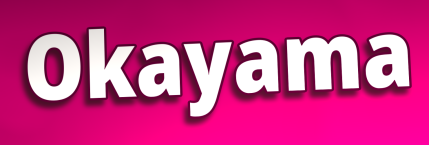
Okayama